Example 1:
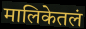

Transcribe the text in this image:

मालिकेतलं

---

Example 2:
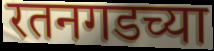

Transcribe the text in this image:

रतनगडच्या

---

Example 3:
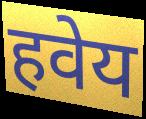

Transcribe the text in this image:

हवेय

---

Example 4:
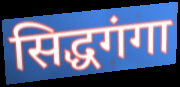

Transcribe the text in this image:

सिद्धगंगा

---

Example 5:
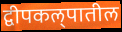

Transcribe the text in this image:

द्वीपकल्पातील